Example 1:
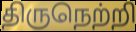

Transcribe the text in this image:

திருநெற்றி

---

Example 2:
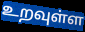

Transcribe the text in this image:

உறவுள்ள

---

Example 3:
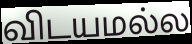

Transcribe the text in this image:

விடயமல்ல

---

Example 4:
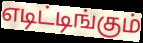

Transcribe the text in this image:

எடிட்டிங்கும்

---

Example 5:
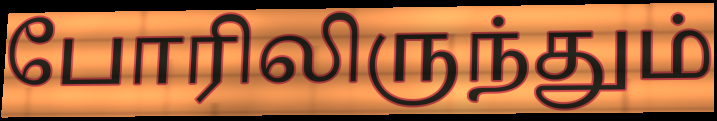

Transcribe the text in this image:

போரிலிருந்தும்